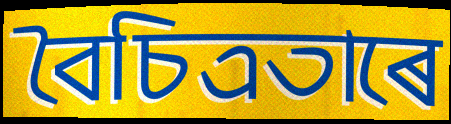
বৈচিত্ৰতাৰে